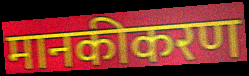
मानकीकरण